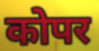
कोपर